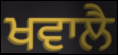
ਖਵਾਲੈ